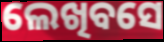
ଲେଖିବସେ